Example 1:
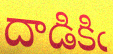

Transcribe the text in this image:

దాడికిఁ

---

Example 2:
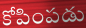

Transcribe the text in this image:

కోపింపడు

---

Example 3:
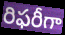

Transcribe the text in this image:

రిఫరీగా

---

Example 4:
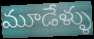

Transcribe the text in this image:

మూడేళ్ళు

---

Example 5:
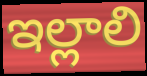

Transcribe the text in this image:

ఇల్లాలి